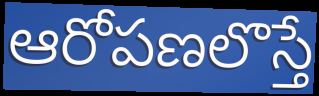
ఆరోపణలొస్తే